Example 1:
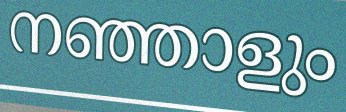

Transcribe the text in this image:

നഞ്ഞാളും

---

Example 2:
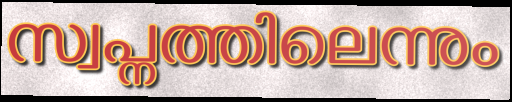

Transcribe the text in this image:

സ്വപ്നത്തിലെന്നും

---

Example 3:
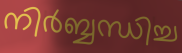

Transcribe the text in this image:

നിർബ്ബന്ധിച്ച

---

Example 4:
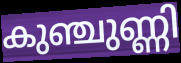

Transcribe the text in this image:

കുഞ്ചുണ്ണി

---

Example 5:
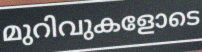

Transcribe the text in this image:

മുറിവുകളോടെ